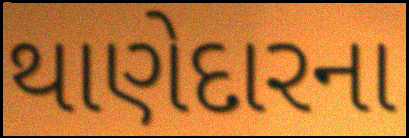
થાણેદારના